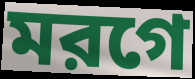
মরগে